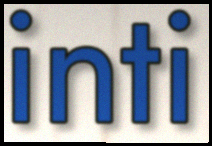
inti